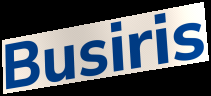
Busiris